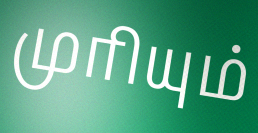
முரியும்